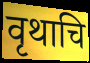
वृथाचि